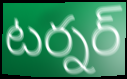
టర్నర్